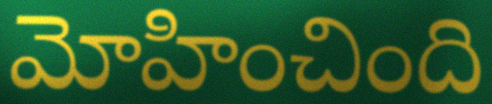
మోహించింది